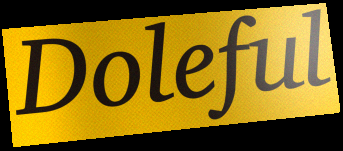
Doleful